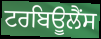
ਟਰਬਿਊਲੈਂਸ